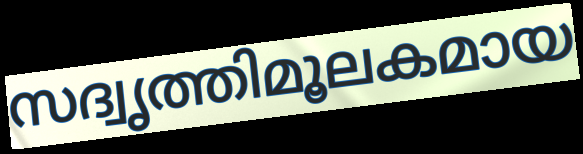
സദ്വൃത്തിമൂലകമായ